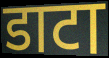
डाटा